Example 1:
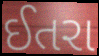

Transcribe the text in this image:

ઈતરા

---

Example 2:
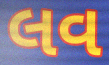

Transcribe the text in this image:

લવ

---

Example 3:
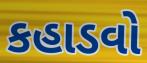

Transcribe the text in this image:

કહાડવો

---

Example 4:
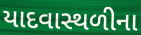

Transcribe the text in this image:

યાદવાસ્થળીના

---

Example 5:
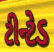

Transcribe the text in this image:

ટીન્ટેડ